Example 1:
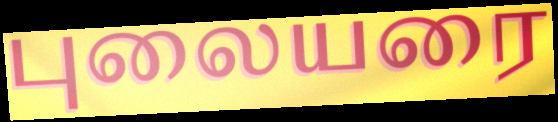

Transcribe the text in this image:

புலையரை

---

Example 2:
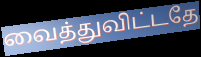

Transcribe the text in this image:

வைத்துவிட்டதே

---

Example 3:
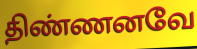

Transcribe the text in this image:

திண்ணனவே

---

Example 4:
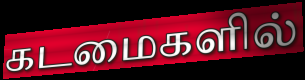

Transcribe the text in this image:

கடமைகளில்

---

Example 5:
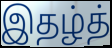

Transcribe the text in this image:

இதழ்த்